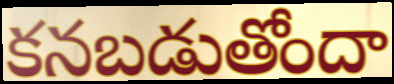
కనబడుతోందా